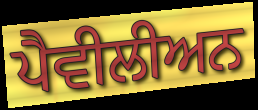
ਪੈਵੀਲੀਅਨ